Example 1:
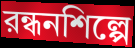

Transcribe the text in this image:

রন্ধনশিল্পে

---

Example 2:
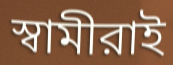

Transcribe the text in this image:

স্বামীরাই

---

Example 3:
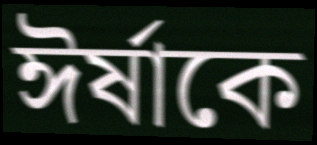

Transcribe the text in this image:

ঈর্ষাকে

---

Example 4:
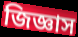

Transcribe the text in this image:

জিজ্ঞাস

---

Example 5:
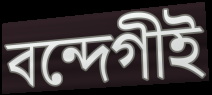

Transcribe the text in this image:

বন্দেগীই